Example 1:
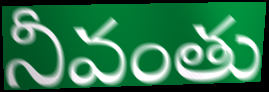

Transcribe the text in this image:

నీవంతు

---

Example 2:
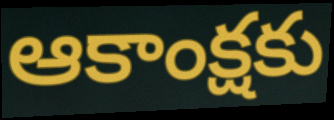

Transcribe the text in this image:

ఆకాంక్షకు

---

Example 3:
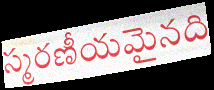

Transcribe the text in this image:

స్మరణీయమైనది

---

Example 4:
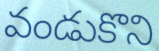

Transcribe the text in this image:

వండుకొని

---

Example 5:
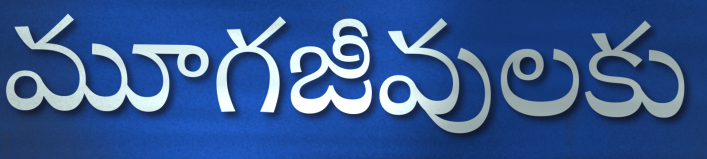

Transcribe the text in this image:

మూగజీవులకు